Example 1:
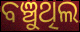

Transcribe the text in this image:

ବଞ୍ଚୁଥିଲ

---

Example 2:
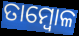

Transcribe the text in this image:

ତାମ୍ବୋଳ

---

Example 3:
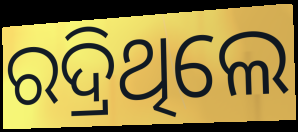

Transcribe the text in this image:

ରଦ୍ରିଥିଲେ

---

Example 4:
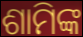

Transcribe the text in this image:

ଶାମିଙ୍କ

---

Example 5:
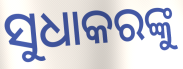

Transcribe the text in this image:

ସୁଧାକରଙ୍କୁ